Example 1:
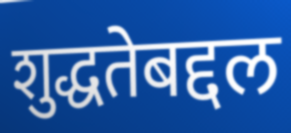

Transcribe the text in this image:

शुद्धतेबद्दल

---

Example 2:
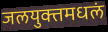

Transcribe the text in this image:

जलयुक्तमधलं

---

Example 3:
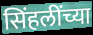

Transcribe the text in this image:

सिंहलींच्या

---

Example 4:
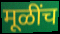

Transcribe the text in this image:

मूळींच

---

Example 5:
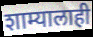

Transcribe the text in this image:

शाम्यालाही